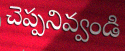
చెప్పనివ్వండి